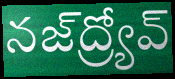
నజ్‌ద్ర్యోవ్